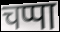
चप्पा